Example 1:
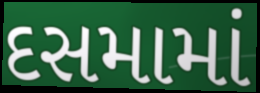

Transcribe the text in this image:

દસમામાં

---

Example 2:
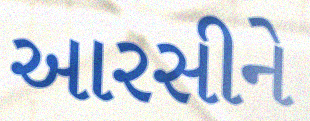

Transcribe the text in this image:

આરસીને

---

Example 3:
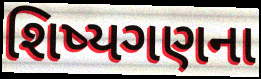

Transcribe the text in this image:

શિષ્યગણના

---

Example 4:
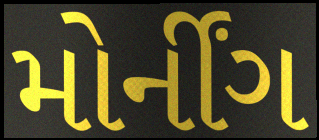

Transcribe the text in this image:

મોર્નીંગ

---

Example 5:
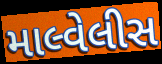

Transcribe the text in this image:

માલ્વેલીસ